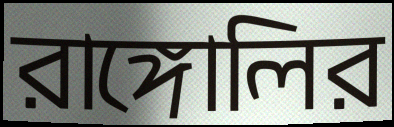
রাঙ্গোলির